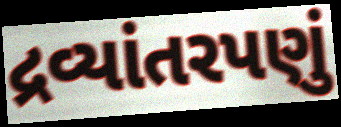
દ્રવ્યાંતરપણું